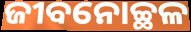
ଜୀବନୋଚ୍ଛଳ